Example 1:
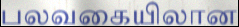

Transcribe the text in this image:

பலவகையிலான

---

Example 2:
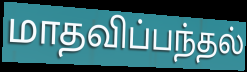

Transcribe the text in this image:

மாதவிப்பந்தல்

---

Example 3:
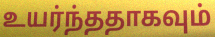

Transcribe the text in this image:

உயர்ந்ததாகவும்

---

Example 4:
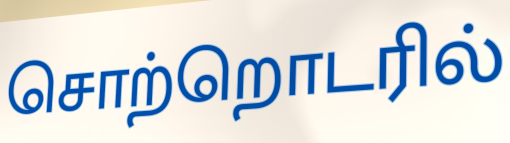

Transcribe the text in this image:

சொற்றொடரில்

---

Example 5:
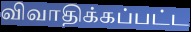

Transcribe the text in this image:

விவாதிக்கப்பட்ட